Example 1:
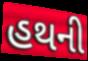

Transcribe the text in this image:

હથની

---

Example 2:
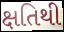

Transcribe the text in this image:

ક્ષતિથી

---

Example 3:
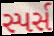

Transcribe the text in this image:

સ્પર્સ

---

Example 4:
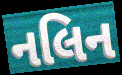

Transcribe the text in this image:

નલિન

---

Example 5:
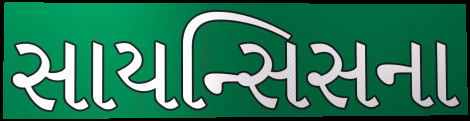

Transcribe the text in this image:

સાયન્સિસના